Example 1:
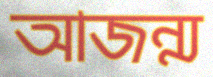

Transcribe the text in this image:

আজন্ম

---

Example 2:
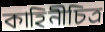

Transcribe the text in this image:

কাহিনীচিত্র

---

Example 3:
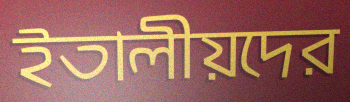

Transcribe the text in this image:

ইতালীয়দের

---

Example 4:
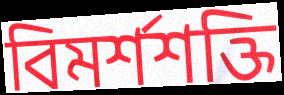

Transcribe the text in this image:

বিমর্শশক্তি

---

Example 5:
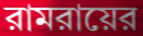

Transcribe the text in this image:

রামরায়ের